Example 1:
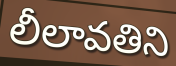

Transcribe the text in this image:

లీలావతిని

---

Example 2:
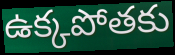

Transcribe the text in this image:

ఉక్కపోతకు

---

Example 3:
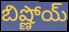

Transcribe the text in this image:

బిష్ణోయ్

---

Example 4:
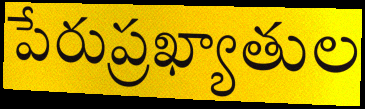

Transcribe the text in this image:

పేరుప్రఖ్యాతుల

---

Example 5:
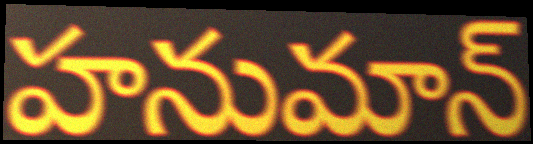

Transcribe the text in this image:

హనుమాన్